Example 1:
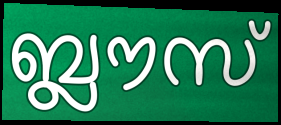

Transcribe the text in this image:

ബ്ലൗസ്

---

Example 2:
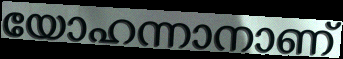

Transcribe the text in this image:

യോഹന്നാനാണ്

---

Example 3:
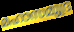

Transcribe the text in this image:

മഹാസമുദ്ര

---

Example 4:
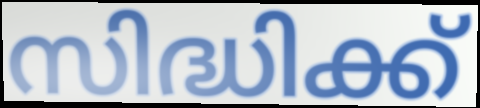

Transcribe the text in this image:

സിദ്ധിക്ക്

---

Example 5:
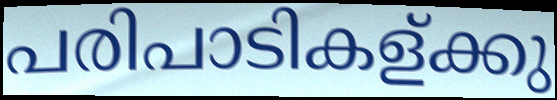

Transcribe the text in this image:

പരിപാടികള്ക്കു